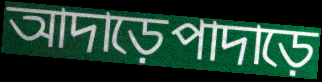
আদাড়েপাদাড়ে